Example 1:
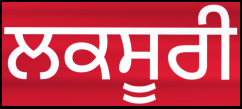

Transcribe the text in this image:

ਲਕਸੂਰੀ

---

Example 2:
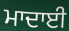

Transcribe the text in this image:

ਮਾਦਾਈ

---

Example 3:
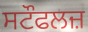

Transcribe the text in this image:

ਸਟੌਫਲਜ਼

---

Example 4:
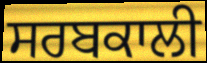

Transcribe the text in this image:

ਸਰਬਕਾਲੀ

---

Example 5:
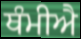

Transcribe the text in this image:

ਥੰਮੀਐ